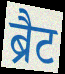
ब्रैट